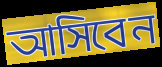
আসিবেন